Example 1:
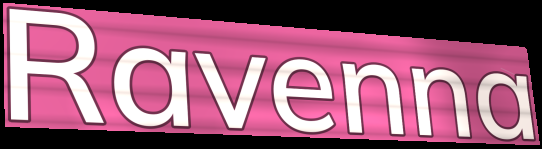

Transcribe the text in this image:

Ravenna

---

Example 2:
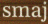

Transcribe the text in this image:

smaj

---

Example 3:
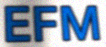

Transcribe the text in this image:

EFM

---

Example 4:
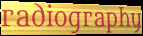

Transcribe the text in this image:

radiography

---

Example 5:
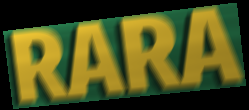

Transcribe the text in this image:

RARA